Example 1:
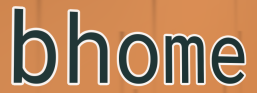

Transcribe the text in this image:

bhome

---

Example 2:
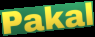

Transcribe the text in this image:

Pakal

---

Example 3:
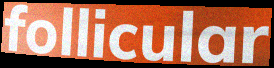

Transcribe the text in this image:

follicular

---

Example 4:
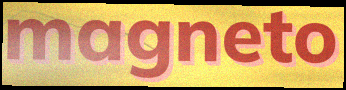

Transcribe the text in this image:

magneto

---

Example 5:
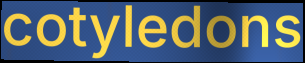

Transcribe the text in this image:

cotyledons